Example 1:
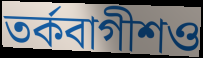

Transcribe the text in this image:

তর্কবাগীশও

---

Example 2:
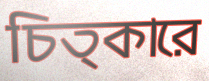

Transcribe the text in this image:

চিত্কারে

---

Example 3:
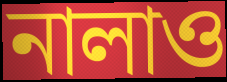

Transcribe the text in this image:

নালাও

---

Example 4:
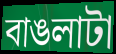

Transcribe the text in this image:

বাঙলাটা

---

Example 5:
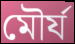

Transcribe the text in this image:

মৌর্য